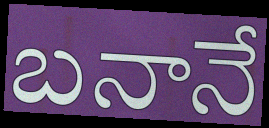
బనానే